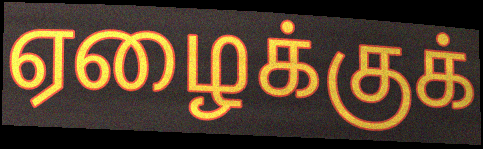
ஏழைக்குக்